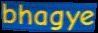
bhagye